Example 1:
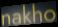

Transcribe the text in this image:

nakho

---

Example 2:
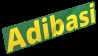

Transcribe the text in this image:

Adibasi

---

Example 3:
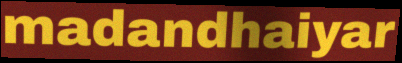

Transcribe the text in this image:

madandhaiyar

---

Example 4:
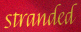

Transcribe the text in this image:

stranded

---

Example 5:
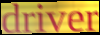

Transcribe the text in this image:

driver